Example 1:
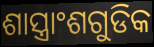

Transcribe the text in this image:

ଶାସ୍ତ୍ରାଂଶଗୁଡିକ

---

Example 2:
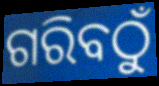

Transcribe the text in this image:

ଗରିବଠୁଁ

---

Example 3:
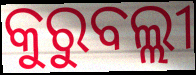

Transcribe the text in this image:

କୁରୁବଲ୍ଲୀ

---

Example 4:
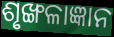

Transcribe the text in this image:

ଶୃଙ୍ଖଳାଜ୍ଞାନ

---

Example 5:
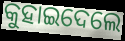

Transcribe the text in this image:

କୁହାଇଦେଲେ